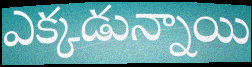
ఎక్కడున్నాయి